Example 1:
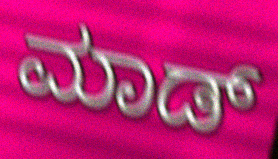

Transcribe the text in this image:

ಮಾಡ್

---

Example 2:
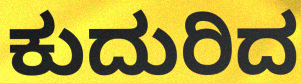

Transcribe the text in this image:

ಕುದುರಿದ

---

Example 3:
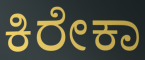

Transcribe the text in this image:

ಕಿರೇಕಾ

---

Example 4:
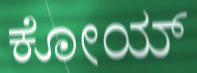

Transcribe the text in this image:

ಕೋಯ್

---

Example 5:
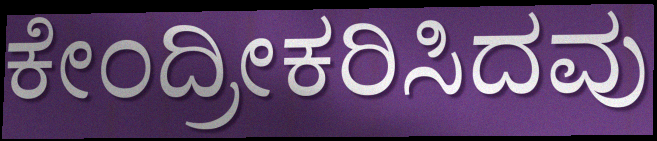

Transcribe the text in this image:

ಕೇಂದ್ರೀಕರಿಸಿದವು